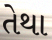
તેથા